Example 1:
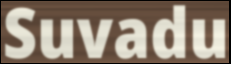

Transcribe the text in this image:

Suvadu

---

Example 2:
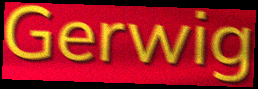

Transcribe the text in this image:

Gerwig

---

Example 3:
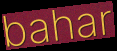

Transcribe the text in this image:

bahar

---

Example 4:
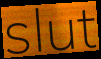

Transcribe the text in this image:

slut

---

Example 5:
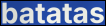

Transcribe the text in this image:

batatas